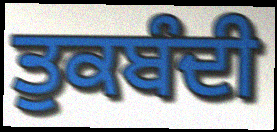
ਤੁਕਬੰਦੀ